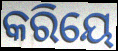
କରିୟେ